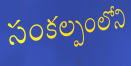
సంకల్పంలోని